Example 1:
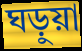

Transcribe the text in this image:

ঘড়ুয়া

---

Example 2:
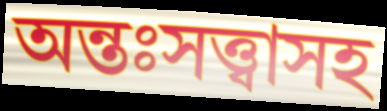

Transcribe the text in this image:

অন্তঃসত্ত্বাসহ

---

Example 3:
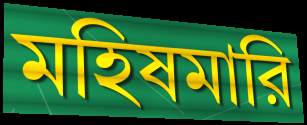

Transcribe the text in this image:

মহিষমারি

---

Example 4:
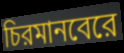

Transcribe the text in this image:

চিরমানবেরে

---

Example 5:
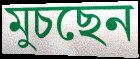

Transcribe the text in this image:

মুচছেন